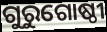
ଗୁରୁଗୋଷ୍ଠୀ